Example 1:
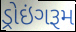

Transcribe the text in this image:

ડ્રોઇંગરૂમ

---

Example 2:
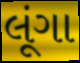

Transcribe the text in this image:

લૂંગા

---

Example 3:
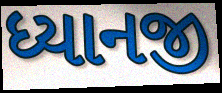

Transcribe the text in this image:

ધ્યાનજી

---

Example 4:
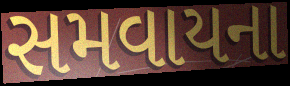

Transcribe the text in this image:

સમવાયના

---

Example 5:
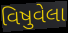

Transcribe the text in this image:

વિષુવેલા